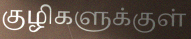
குழிகளுக்குள்